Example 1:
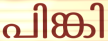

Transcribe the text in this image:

പിങ്കി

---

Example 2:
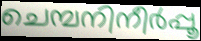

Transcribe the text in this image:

ചെമ്പനിനീർപ്പൂ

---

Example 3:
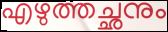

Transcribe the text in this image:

എഴുത്തച്ഛനും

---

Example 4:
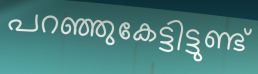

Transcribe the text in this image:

പറഞ്ഞുകേട്ടിട്ടുണ്ട്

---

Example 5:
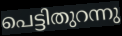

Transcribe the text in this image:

പെട്ടിതുറന്നു